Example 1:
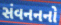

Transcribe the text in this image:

સંવનનનો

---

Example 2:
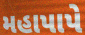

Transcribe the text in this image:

મહાપાપે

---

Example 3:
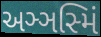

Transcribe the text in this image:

અઞ્ઞસ્મિં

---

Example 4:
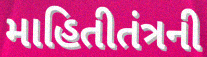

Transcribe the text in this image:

માહિતીતંત્રની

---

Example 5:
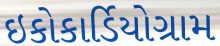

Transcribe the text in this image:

ઇકોકાર્ડિયોગ્રામ